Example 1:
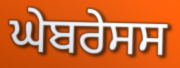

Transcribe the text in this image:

ਘੇਬਰੇਸਸ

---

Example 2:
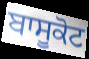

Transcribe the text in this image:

ਬਾਸੂਕੋਟ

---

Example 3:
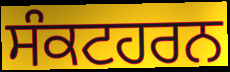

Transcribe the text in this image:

ਸੰਕਟਹਰਨ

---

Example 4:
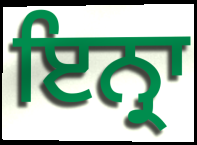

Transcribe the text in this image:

ਇਨ੍ਰਾ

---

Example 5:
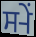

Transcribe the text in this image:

ਸ੍ਮੇਂ